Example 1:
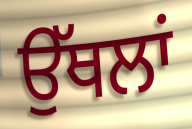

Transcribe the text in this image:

ਉੱਥਲਾਂ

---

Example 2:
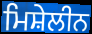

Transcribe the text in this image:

ਮਿਸ਼ੇਲੀਨ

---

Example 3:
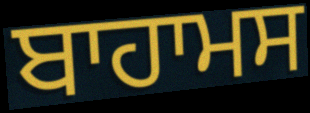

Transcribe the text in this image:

ਬਾਹਾਮਸ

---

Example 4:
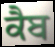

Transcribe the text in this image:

ਕੈਬ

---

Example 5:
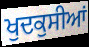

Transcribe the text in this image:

ਖੁਦਕੁਸੀਆਂ